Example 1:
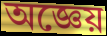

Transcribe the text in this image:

অজ্ঞেয়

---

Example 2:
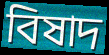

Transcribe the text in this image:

বিষাদ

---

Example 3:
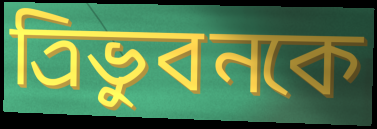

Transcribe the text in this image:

ত্রিভুবনকে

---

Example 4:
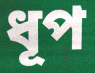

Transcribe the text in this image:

ধূপ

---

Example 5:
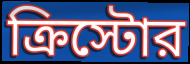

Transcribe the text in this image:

ক্রিস্টোর